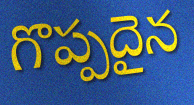
గొప్పదైన